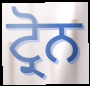
ਟ੍ਰੋਨ